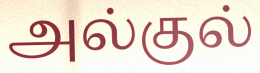
அல்குல்